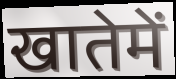
खातेमें